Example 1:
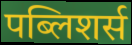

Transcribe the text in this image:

पब्लिशर्स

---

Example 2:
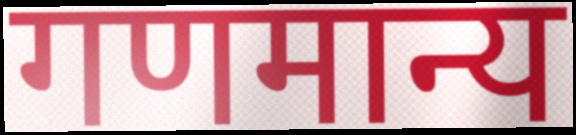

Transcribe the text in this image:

गणमान्य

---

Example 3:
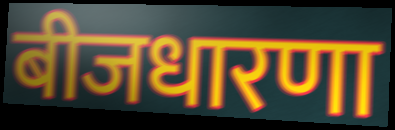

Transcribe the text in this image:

बीजधारणा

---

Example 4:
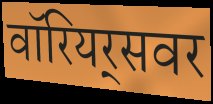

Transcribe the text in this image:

वॉरियर्सवर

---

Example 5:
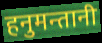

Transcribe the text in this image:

हनुमन्तानी